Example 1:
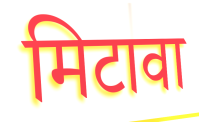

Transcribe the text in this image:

मिटावा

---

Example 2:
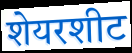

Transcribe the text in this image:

शेयरशीट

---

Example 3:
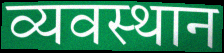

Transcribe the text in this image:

व्यवस्थान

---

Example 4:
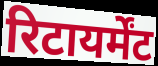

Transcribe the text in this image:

रिटायर्मेंट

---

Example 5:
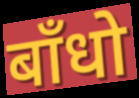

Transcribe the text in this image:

बाँधो